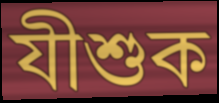
যীশুক